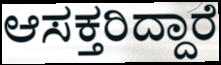
ಆಸಕ್ತರಿದ್ದಾರೆ